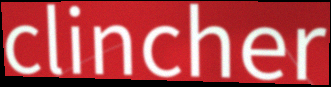
clincher